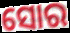
ସୋର